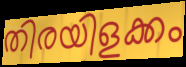
തിരയിളക്കം